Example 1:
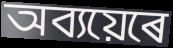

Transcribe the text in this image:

অব্যয়েৰে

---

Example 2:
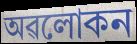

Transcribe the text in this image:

অৱলোকন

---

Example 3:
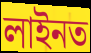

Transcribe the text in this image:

লাইনত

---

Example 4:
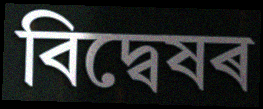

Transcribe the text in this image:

বিদ্বেষৰ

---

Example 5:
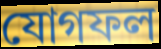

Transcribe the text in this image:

যোগফল